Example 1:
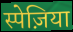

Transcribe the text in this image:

स्पेज़िया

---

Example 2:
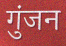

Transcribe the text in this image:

गुंजन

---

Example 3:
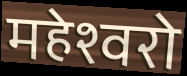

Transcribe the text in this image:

महेश्वरो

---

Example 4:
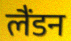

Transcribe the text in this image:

लैंडन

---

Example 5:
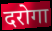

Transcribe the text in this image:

दरोगा